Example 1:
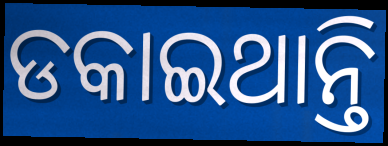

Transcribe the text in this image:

ଡକାଇଥାନ୍ତି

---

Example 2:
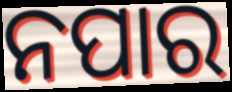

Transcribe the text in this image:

ନପାର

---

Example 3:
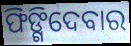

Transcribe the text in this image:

ଫିଙ୍ଗିଦେବାର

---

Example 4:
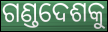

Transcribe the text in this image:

ଗଣ୍ଡଦେଶକୁ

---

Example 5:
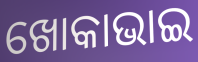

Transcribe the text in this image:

ଖୋକାଭାଇ